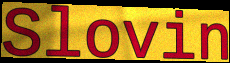
Slovin